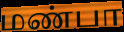
மண்பா